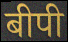
बीपी